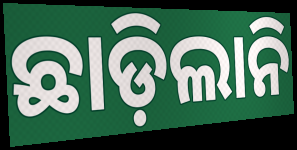
ଛାଡ଼ିଲାନି